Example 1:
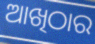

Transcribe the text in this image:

ଆଖିଠାର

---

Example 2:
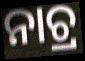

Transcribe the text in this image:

ନାଚ୍ର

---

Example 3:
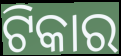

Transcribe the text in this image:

ଟିକାର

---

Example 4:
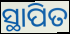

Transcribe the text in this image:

ସ୍ଥାପିତ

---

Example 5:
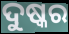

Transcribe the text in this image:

ଦୁଷ୍କର